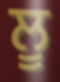
ਲੂ